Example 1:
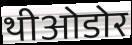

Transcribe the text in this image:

थीओडोर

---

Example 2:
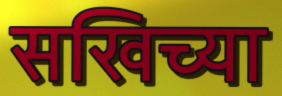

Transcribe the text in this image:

सखिच्या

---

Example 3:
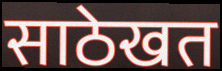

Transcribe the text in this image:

साठेखत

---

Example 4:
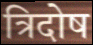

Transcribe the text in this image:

त्रिदोष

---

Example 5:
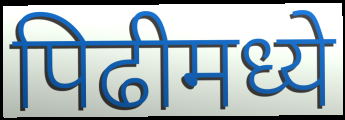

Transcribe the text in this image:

पिढीमध्ये